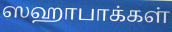
ஸஹாபாக்கள்